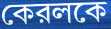
কেরলকে